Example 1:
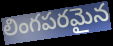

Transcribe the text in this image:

లింగపరమైన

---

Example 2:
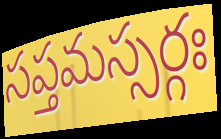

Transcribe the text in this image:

సప్తమస్సర్గః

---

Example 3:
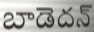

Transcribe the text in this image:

బాడెదన్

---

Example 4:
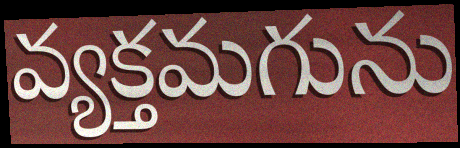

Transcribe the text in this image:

వ్యక్తమగును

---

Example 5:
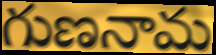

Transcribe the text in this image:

గుణనామ